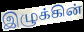
இழுக்கின்